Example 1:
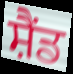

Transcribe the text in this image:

ਸ਼ੈਂਡ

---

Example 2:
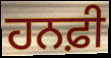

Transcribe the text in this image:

ਹਨਫ਼ੀ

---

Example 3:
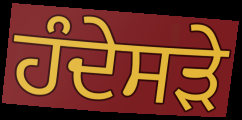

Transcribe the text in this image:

ਹੰਦੇਸੜੇ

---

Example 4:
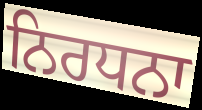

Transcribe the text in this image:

ਨਿਰਧਨਾ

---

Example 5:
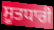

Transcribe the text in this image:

ਸੂਤਧਾਰੀ